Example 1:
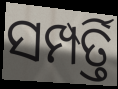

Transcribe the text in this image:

ସମ୍ପର୍ତ୍ତି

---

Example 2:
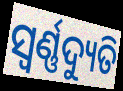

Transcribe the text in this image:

ସ୍ୱର୍ଣ୍ଣଦ୍ୟୁତି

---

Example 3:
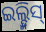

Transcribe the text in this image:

ଇଲ୍ଡ୍ମିସ୍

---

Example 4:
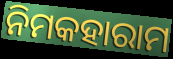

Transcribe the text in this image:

ନିମକହାରାମ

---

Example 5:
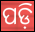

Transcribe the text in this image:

ପଡ଼ି